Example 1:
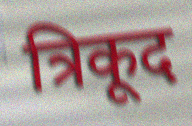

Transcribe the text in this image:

त्रिकूद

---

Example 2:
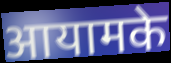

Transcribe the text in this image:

आयामके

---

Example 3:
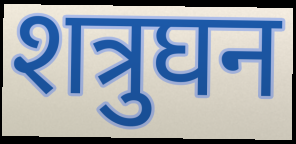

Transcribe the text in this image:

शत्रुघन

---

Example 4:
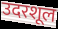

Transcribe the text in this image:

उदरशूल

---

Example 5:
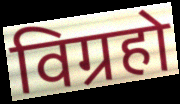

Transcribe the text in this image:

विग्रहो